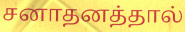
சனாதனத்தால்